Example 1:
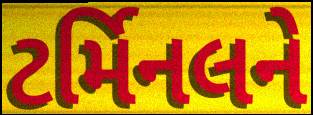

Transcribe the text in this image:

ટર્મિનલને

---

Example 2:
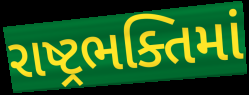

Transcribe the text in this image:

રાષ્ટ્રભક્તિમાં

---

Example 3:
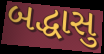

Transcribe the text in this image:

બદ્ધાસુ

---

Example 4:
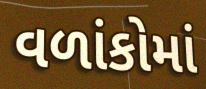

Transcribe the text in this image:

વળાંકોમાં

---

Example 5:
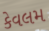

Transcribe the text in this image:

કેવલમ